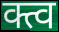
क्त्व